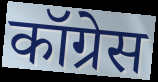
कॉग्रेस